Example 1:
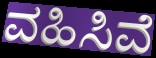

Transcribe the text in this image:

ವಹಿಸಿವೆ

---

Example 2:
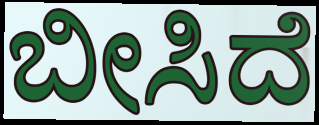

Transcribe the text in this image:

ಬೀಸಿದೆ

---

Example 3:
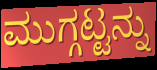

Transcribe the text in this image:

ಮುಗ್ಗಟ್ಟನ್ನು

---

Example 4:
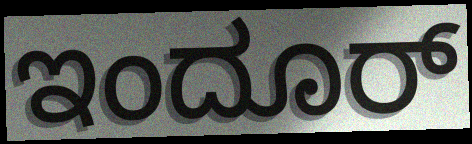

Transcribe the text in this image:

ಇಂದೂರ್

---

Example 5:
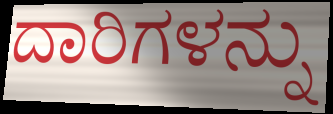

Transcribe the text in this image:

ದಾರಿಗಳನ್ನು